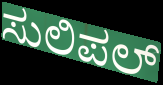
ಸುಲಿಪಲ್